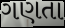
ગણતા